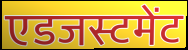
एडजस्टमेंट